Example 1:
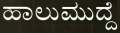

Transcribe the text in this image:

ಹಾಲುಮುದ್ದೆ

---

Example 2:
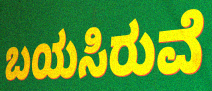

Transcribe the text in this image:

ಬಯಸಿರುವೆ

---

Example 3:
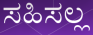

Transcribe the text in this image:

ಸಹಿಸಲ್ಲ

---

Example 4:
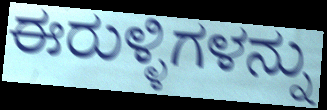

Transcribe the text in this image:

ಈರುಳ್ಳಿಗಳನ್ನು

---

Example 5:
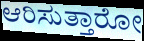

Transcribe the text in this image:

ಆರಿಸುತ್ತಾರೋ